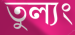
তুল্যং